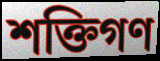
শক্তিগণ